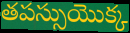
తపస్సుయొక్క